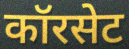
कॉरसेट